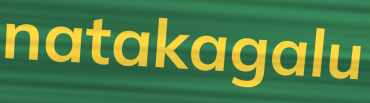
natakagalu